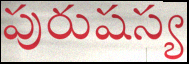
పురుషస్య